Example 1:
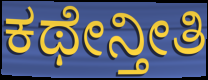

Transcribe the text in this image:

ಕಥೇನ್ತೀತಿ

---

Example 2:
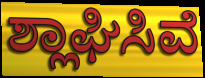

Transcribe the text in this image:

ಶ್ಲಾಘಿಸಿವೆ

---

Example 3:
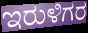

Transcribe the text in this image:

ಇರುಳಿಗರ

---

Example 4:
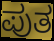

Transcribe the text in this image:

ಪುತ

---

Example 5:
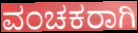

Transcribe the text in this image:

ವಂಚಕರಾಗಿ